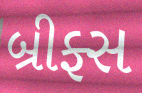
બ્રીફ્સ